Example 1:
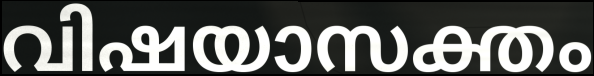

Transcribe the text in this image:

വിഷയാസക്തം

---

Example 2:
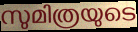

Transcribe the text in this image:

സുമിത്രയുടെ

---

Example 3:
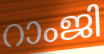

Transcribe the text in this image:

റാംജി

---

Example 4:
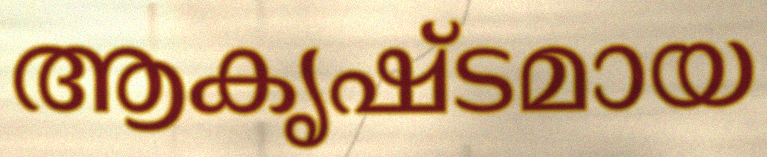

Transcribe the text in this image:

ആകൃഷ്ടമായ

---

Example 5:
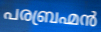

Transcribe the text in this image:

പരബ്രഹ്മൻ